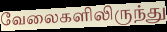
வேலைகளிலிருந்து